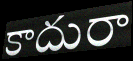
కాదురా